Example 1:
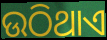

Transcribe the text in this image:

ଉଠିଥାଏ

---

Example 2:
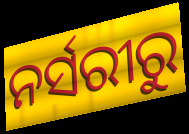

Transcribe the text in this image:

ନର୍ସରୀରୁ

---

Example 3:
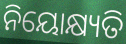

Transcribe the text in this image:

ନିୟୋକ୍ଷ୍ୟତି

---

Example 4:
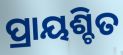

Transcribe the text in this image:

ପ୍ରାୟଶ୍ଚିତ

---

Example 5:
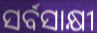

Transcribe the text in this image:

ସର୍ବସାକ୍ଷୀ